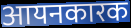
आयनकारक